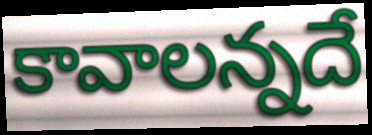
కావాలన్నదే